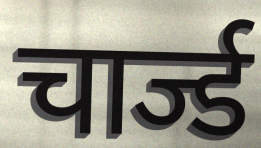
चार्ज्ड